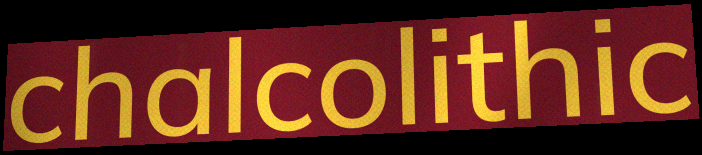
chalcolithic